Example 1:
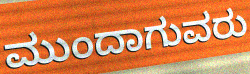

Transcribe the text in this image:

ಮುಂದಾಗುವರು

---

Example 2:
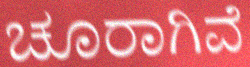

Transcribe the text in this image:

ಚೂರಾಗಿವೆ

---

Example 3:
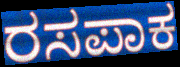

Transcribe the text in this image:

ರಸಪಾಕ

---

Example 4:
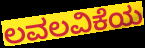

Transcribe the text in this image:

ಲವಲವಿಕೆಯ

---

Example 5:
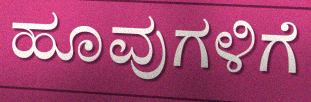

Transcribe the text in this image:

ಹೂವುಗಳಿಗೆ